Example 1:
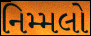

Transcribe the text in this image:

નિમ્મલો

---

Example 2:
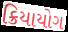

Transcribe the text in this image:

ક્રિયાયોગ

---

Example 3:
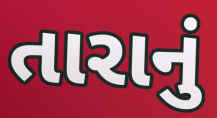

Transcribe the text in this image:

તારાનું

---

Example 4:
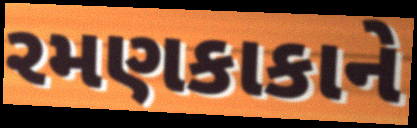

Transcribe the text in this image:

રમણકાકાને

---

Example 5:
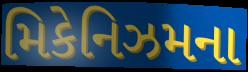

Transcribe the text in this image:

મિકેનિઝમના